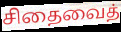
சிதைவைத்